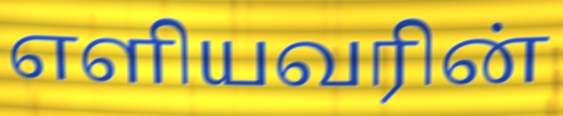
எளியவரின்